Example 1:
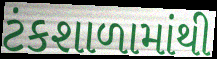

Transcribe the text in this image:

ટંકશાળામાંથી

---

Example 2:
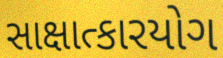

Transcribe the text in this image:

સાક્ષાત્કારયોગ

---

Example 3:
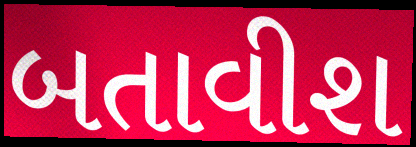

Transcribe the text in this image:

બતાવીશ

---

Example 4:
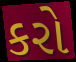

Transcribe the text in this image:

કરો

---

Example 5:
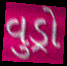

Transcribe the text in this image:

વુડ્રો